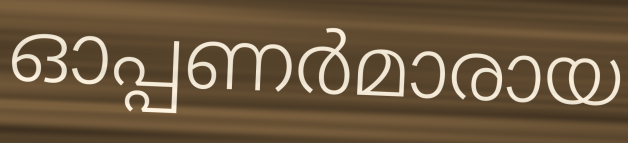
ഓപ്പണർമാരായ